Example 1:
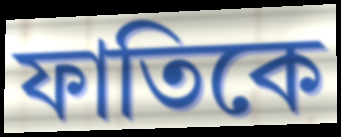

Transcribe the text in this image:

ফাতিকে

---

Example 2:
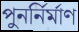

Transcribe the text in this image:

পুনর্নির্মাণ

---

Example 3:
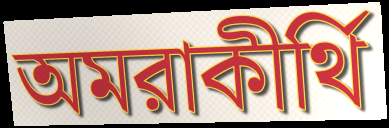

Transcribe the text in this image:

অমরাকীর্থি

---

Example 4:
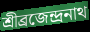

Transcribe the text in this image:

শ্রীব্রজেন্দ্রনাথ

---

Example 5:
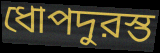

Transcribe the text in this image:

ধোপদুরস্ত